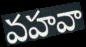
వహవా